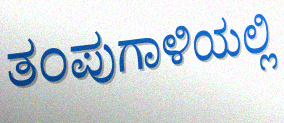
ತಂಪುಗಾಳಿಯಲ್ಲಿ